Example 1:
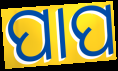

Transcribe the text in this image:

ପାପ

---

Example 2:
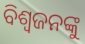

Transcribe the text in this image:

ବିଶ୍ୱଜନଙ୍କୁ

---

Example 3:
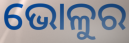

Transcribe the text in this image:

ଭୋଳୁର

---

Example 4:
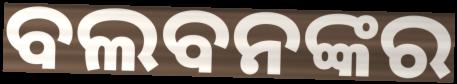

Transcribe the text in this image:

ବଲବନଙ୍କର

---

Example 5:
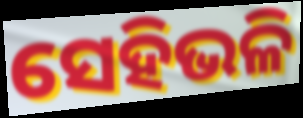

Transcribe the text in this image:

ସେହିଭଳି